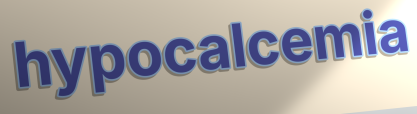
hypocalcemia